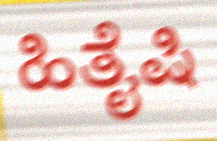
ಹಿತೈಷಿ